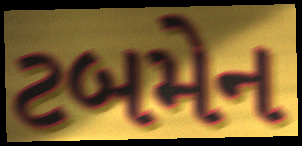
ટબમેન